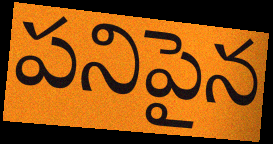
పనిపైన